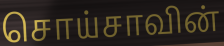
சொய்சாவின்